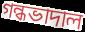
গন্ধভাদাল